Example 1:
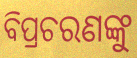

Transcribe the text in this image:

ବିପ୍ରଚରଣଙ୍କୁ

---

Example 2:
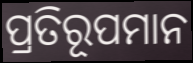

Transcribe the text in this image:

ପ୍ରତିରୂପମାନ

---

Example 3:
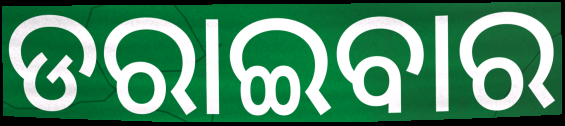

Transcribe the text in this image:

ଡରାଇବାର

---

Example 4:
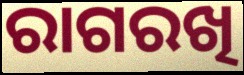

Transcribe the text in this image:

ରାଗରଖି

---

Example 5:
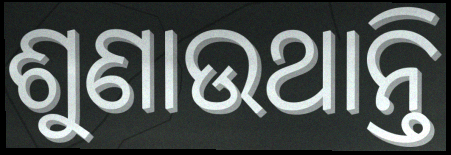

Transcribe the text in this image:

ଶୁଣାଉଥାନ୍ତି